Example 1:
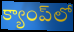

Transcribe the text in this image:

క్యాంప్‌లో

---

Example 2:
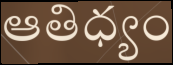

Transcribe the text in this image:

ఆతిధ్యం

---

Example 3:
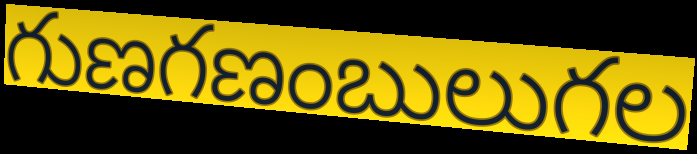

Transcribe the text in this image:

గుణగణంబులుగల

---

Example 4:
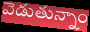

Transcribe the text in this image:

వెడుతున్నాం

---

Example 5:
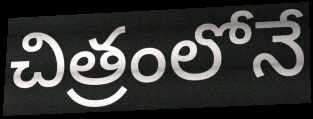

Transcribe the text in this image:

చిత్రంలోనే